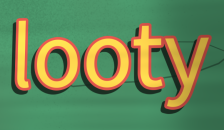
looty